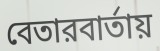
বেতারবার্তায়